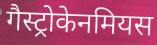
गैस्ट्रोकेनमियस